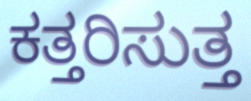
ಕತ್ತರಿಸುತ್ತ